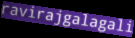
ravirajgalagali